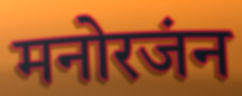
मनोरजंन